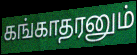
கங்காதரனும்